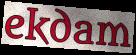
ekdam